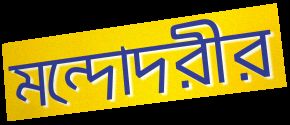
মন্দোদরীর